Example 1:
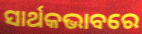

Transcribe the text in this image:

ସାର୍ଥକଭାବରେ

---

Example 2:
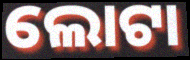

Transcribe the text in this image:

ଲୋଟା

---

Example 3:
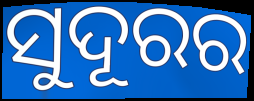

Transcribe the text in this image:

ସୁଦୂରର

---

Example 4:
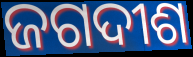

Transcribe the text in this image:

ଜଗଦୀଶ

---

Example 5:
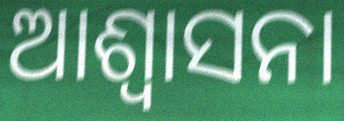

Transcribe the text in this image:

ଆଶ୍ଵାସନା